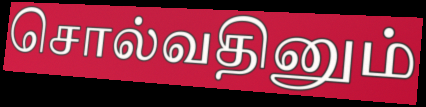
சொல்வதினும்